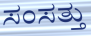
ಸಂಸತ್ತು